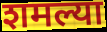
शमल्या